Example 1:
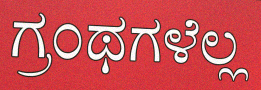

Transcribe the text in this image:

ಗ್ರಂಥಗಳೆಲ್ಲ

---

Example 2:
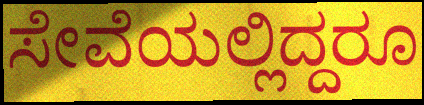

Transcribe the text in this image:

ಸೇವೆಯಲ್ಲಿದ್ದರೂ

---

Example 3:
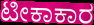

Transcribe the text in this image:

ಟೀಕಾಕಾರ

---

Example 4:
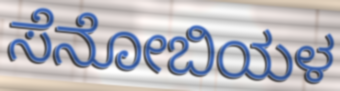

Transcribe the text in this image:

ಸೆನೋಬಿಯಳ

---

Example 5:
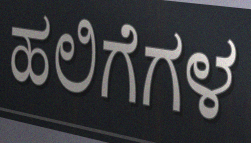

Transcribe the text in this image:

ಹಲಿಗೆಗಳ